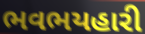
ભવભયહારી